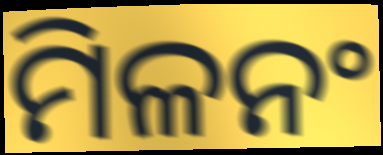
ମିଳନଂ